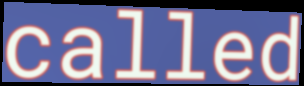
called